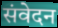
संवेदन